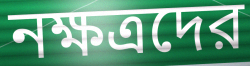
নক্ষত্রদের